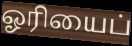
ஓரியைப்